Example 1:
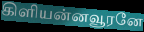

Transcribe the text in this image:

கிளியன்னவூரனே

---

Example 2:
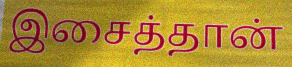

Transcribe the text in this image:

இசைத்தான்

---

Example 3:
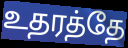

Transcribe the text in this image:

உதரத்தே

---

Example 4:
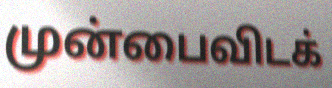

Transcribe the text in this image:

முன்பைவிடக்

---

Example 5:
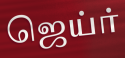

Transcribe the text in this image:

ஜெய்ர்